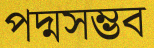
পদ্মসম্ভব